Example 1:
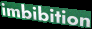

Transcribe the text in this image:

imbibition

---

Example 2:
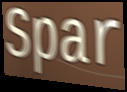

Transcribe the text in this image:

Spar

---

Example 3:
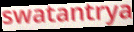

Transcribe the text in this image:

swatantrya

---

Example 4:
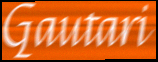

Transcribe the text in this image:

Gautari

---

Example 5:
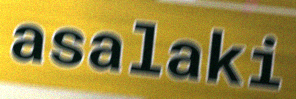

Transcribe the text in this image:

asalaki